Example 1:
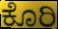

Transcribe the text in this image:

ಕೊರಿ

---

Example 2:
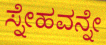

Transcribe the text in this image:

ಸ್ನೇಹವನ್ನೇ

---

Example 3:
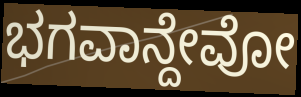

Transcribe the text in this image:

ಭಗವಾನ್ದೇವೋ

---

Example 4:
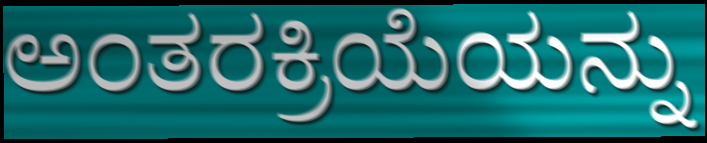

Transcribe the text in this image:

ಅಂತರಕ್ರಿಯೆಯನ್ನು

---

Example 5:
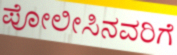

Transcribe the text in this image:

ಪೋಲೀಸಿನವರಿಗೆ